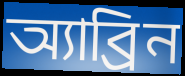
অ্যাব্রিন